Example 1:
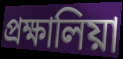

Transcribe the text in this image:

প্রক্ষালিয়া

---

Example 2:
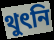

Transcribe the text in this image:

থুৎনি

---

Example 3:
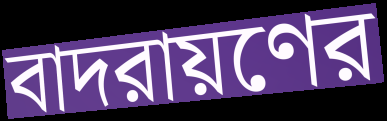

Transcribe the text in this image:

বাদরায়ণের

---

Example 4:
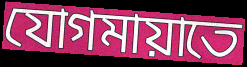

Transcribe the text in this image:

যোগমায়াতে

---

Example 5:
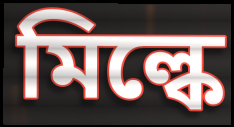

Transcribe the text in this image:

মিল্কে